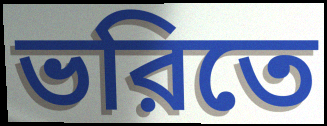
ভরিতে